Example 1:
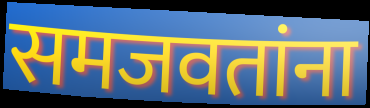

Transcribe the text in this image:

समजवतांना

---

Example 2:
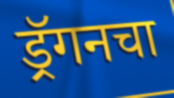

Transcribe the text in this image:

ड्रॅगनचा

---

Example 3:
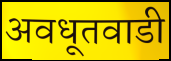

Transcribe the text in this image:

अवधूतवाडी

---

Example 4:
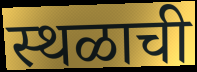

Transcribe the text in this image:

स्थळाची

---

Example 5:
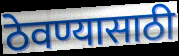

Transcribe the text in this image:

ठेवण्यासाठी